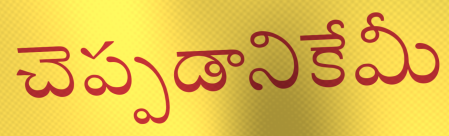
చెప్పడానికేమీ